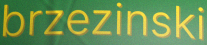
brzezinski